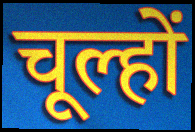
चूल्हों